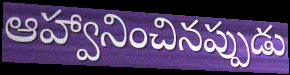
ఆహ్వానించినప్పుడు